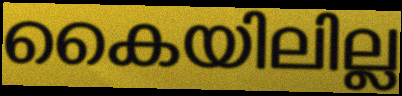
കൈയിലില്ല